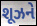
શૂઝને